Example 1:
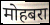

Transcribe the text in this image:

मोहबरा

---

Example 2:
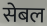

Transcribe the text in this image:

सेबल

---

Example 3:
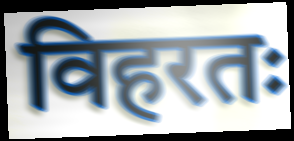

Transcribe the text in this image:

विहरतः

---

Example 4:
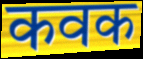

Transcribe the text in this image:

कवक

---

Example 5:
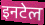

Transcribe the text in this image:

इनटेल